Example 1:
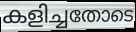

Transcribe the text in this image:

കളിച്ചതോടെ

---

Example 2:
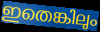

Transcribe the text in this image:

ഇതെങ്കിലും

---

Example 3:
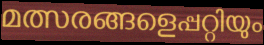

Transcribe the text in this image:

മത്സരങ്ങളെപ്പറ്റിയും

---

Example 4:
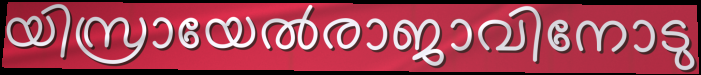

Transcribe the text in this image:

യിസ്രായേൽരാജാവിനോടു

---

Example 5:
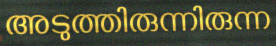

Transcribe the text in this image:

അടുത്തിരുന്നിരുന്ന